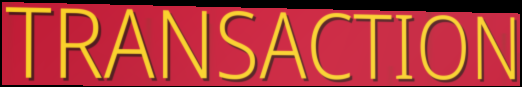
TRANSACTION